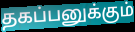
தகப்பனுக்கும்